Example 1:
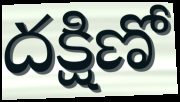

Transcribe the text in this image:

దక్షిణో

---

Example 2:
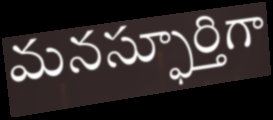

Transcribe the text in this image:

మనస్ఫూర్తిగా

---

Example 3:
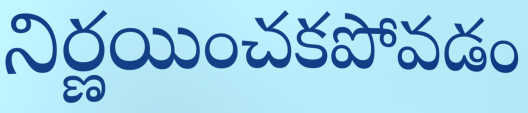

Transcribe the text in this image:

నిర్ణయించకపోవడం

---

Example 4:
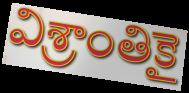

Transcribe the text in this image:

విశ్రాంతికై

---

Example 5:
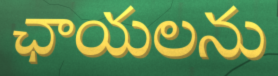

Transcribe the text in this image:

ఛాయలను